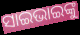
ସାଇଭାଇଙ୍କୁ